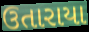
ઉતારાયા